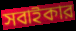
সবাইকার